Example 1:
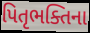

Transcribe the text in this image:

પિતૃભક્તિના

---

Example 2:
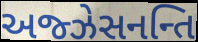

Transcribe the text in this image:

અજ્ઝેસનન્તિ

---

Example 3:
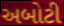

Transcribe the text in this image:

અબોટી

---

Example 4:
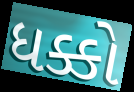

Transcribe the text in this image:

ધક્કો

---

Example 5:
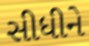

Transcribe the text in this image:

સીધીને